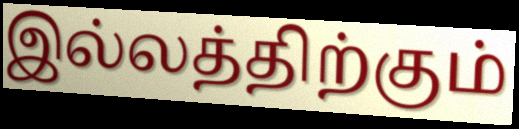
இல்லத்திற்கும்